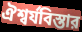
ঐশ্বর্যবিস্তার